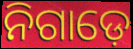
ନିଗାଡ଼େ